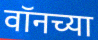
वॉनच्या